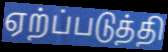
ஏற்ப்படுத்தி